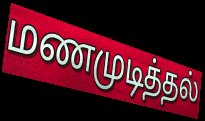
மணமுடித்தல்